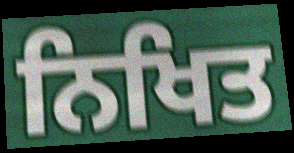
ਨਿਖਿਤ